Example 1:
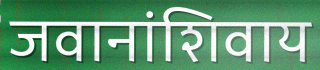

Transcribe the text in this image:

जवानांशिवाय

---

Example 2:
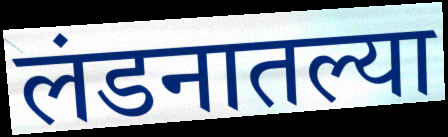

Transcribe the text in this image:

लंडनातल्या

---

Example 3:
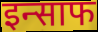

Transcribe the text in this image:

इन्साफ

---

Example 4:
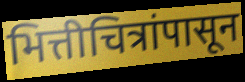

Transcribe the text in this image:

भित्तीचित्रांपासून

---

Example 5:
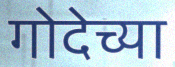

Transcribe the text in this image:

गोदेच्या